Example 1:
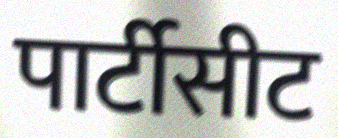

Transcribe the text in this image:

पार्टीसीट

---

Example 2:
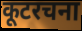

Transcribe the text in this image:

कूटरचना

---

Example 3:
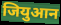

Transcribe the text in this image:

जियुआन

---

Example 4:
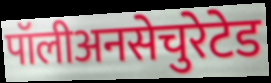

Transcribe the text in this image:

पॉलीअनसेचुरेटेड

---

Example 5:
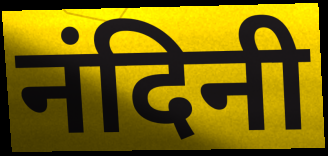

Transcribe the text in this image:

नंदिनी